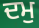
ਦਮੁ